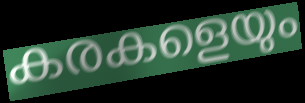
കരകളെയും